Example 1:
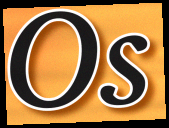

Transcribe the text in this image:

Os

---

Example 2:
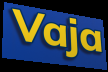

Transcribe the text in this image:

Vaja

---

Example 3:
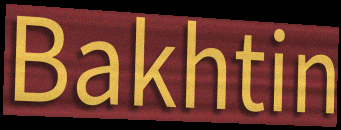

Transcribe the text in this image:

Bakhtin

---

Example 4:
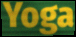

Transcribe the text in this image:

Yoga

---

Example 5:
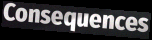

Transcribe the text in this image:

Consequences